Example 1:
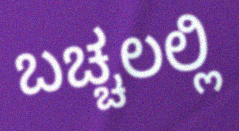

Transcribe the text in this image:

ಬಚ್ಚಲಲ್ಲಿ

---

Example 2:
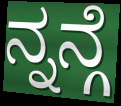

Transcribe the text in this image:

ನ್ನನ್ಗೆ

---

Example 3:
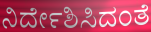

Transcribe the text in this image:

ನಿರ್ದೇಶಿಸಿದಂತೆ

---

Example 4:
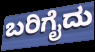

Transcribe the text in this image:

ಬರಿಗೈದು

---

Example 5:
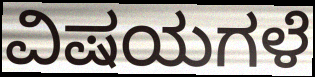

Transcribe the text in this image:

ವಿಷಯಗಳೆ